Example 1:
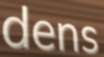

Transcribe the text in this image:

dens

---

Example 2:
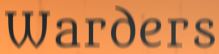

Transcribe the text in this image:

Warders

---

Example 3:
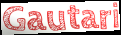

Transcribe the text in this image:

Gautari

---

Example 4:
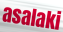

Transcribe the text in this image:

asalaki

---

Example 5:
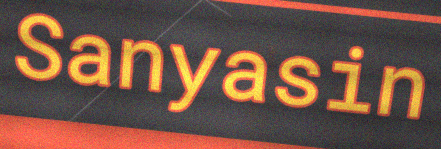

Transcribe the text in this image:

Sanyasin